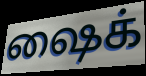
ஷைக்